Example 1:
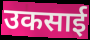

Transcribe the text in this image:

उकसाई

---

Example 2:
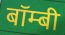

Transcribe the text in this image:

बॉम्बी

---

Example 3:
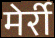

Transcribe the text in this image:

मेर्री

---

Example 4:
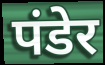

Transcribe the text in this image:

पंडेर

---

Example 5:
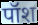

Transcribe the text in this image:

पॉश